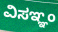
ವಿಸಞ್ಞಂ